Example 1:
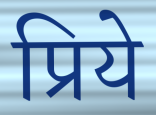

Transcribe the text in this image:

प्रिये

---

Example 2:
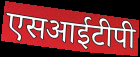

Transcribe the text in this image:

एसआईटीपी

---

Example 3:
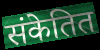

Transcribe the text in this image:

संकेतित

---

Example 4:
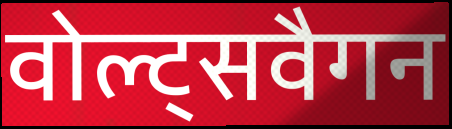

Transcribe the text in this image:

वोल्ट्सवैगन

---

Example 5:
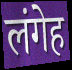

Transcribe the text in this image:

लंगेह